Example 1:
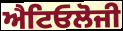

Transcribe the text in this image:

ਐਟਿਓਲੋਜੀ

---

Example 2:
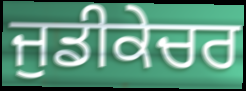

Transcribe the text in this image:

ਜੁਡੀਕੇਚਰ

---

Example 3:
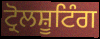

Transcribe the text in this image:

ਟ੍ਰੋਲਸ਼ੂਟਿੰਗ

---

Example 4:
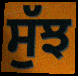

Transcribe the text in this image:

ਸੁੱਝ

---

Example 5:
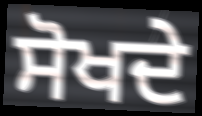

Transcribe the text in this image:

ਸੋਖਦੇ